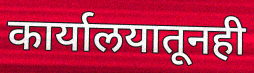
कार्यालयातूनही